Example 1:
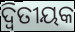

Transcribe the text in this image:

ଦ୍ୱିତୀୟକ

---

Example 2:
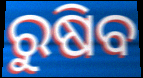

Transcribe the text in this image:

ରୁଷିବ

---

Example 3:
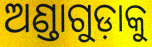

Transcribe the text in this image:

ଅଣ୍ଡାଗୁଡ଼ାକୁ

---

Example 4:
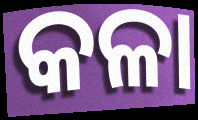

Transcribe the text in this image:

କଳା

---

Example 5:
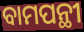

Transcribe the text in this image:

ବାମପନ୍ଥୀ